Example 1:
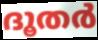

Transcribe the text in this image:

ദൂതർ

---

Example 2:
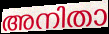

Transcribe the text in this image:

അനിതാ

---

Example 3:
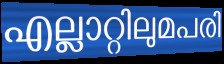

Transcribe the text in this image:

എല്ലാറ്റിലുമപരി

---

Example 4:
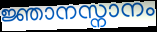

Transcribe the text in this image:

ജ്ഞാനസ്നാനം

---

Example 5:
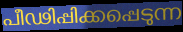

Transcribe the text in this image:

പീഢിപ്പിക്കപ്പെടുന്ന